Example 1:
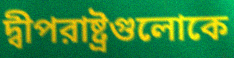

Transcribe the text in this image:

দ্বীপরাষ্ট্রগুলোকে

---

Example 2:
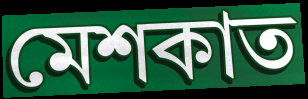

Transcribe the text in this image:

মেশকাত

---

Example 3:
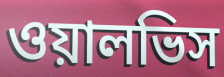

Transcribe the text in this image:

ওয়ালভিস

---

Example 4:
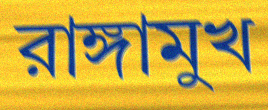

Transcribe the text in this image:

রাঙ্গামুখ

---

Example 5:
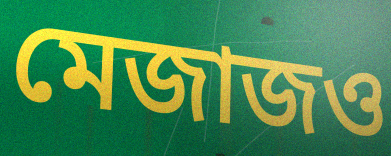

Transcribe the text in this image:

মেজাজও